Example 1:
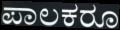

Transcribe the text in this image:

ಪಾಲಕರೂ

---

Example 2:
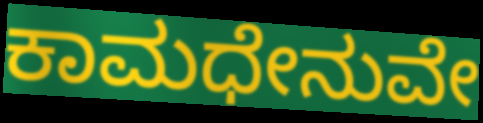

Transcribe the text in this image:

ಕಾಮಧೇನುವೇ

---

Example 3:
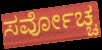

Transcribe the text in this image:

ಸರ್ವೋಚ್ಚ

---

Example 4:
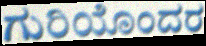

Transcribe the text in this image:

ಗುರಿಯೊಂದರ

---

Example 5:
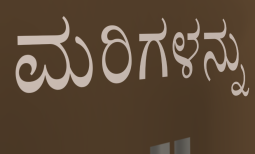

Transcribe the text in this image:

ಮರಿಗಳನ್ನು